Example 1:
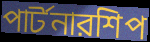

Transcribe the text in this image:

পার্টনারশিপ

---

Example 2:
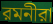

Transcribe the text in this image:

রমনীরা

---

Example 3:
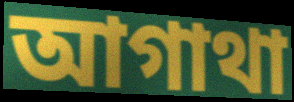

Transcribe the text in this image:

আগাথা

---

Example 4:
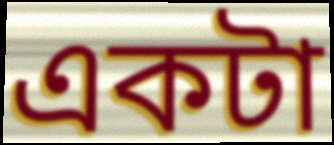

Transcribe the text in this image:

একটা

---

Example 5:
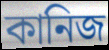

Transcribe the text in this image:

কানিজ